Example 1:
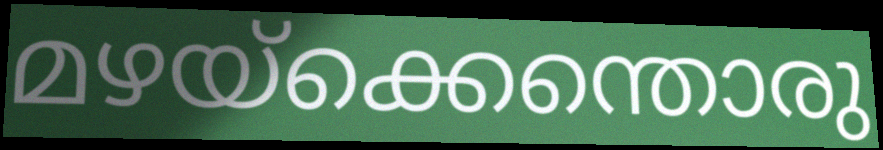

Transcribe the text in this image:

മഴയ്ക്കെന്തൊരു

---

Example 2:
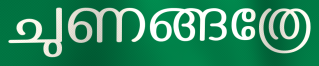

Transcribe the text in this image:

ചുണങ്ങത്രേ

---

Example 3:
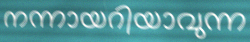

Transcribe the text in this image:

നന്നായറിയാവുന്ന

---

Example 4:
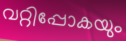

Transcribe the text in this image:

വറ്റിപ്പോകയും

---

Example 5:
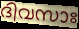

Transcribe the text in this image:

ദിവസാഃ